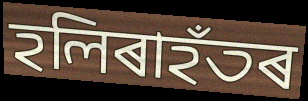
হলিৰাহঁতৰ